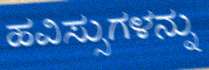
ಹವಿಸ್ಸುಗಳನ್ನು